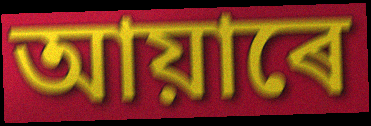
আয়াৰে